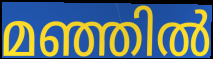
മഞ്ഞിൽ